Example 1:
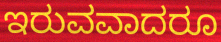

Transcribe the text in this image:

ಇರುವವಾದರೂ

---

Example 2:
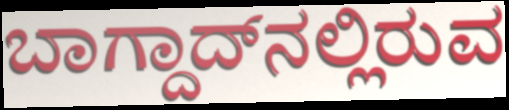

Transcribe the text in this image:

ಬಾಗ್ದಾದ್‌ನಲ್ಲಿರುವ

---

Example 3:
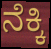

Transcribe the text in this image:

ನೆಕ್ಕಿ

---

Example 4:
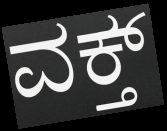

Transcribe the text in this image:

ವಕ್ತ್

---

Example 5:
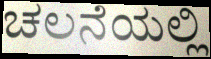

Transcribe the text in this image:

ಚಲನೆಯಲ್ಲಿ